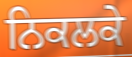
ਨਿਕਲਕੇ